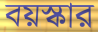
বয়স্কার